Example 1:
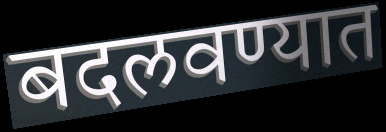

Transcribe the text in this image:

बदलवण्यात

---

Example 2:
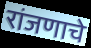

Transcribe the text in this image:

रांजणाचे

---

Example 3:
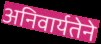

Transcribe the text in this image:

अनिवार्यतेने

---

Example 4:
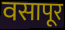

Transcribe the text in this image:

वसापूर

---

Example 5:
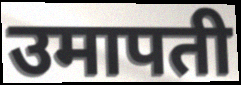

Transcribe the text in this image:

उमापती